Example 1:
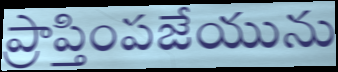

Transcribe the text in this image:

ప్రాప్తింపజేయును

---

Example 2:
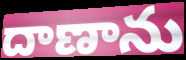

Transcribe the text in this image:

దాణాను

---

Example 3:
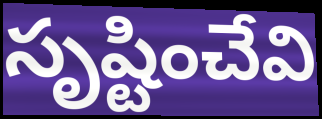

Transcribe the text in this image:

సృష్టించేవి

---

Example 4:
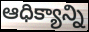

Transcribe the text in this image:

ఆధిక్యాన్ని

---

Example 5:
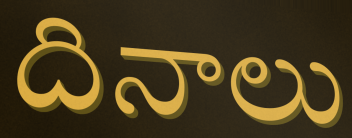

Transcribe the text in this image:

దినాలు